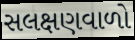
સલક્ષણવાળો